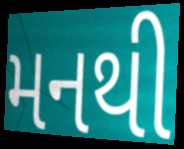
મનથી